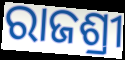
ରାଜଶ୍ରୀ